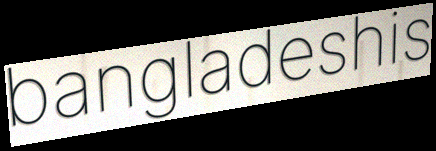
bangladeshis